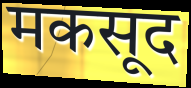
मकसूद